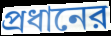
প্রধানের